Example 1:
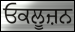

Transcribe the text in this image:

ਓਕਲੂਜ਼ਨ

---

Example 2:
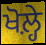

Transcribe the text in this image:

ਖੋਲ਼੍ਹੇ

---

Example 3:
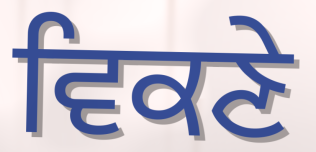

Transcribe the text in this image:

ਵਿਕਣੇ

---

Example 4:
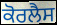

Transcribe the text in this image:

ਕੋਰਲੈਸ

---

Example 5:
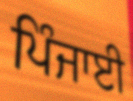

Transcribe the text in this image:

ਪਿੰਜਾਈ